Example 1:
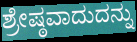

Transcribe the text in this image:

ಶ್ರೇಷ್ಠವಾದುದನ್ನು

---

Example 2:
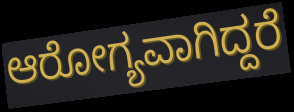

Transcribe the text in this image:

ಆರೋಗ್ಯವಾಗಿದ್ದರೆ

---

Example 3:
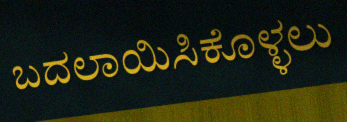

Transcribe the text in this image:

ಬದಲಾಯಿಸಿಕೊಳ್ಳಲು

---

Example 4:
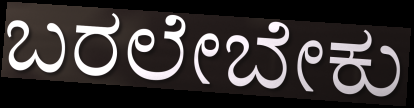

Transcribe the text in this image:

ಬರಲೇಬೇಕು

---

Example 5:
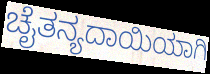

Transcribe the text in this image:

ಚೈತನ್ಯದಾಯಿಯಾಗಿ